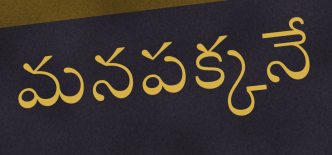
మనపక్కనే